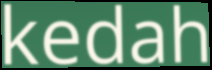
kedah